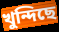
খুন্দিছে